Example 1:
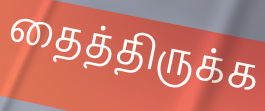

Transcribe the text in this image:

தைத்திருக்க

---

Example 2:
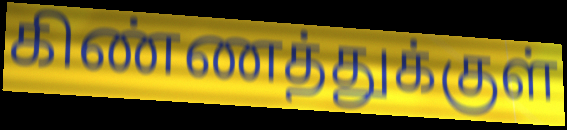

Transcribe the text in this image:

கிண்ணத்துக்குள்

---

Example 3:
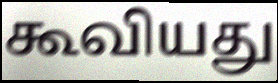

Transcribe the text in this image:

கூவியது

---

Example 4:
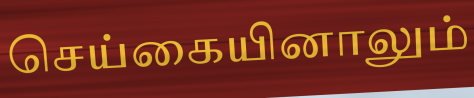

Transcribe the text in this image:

செய்கையினாலும்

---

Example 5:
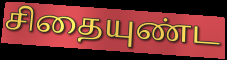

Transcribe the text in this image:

சிதையுண்ட